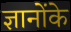
ज्ञानोंके